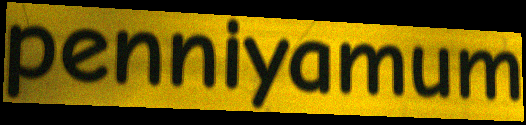
penniyamum